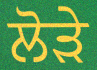
ਲੋੜੇ